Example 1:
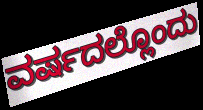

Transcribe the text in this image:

ವರ್ಷದಲ್ಲೊಂದು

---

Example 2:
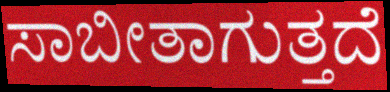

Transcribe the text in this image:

ಸಾಬೀತಾಗುತ್ತದೆ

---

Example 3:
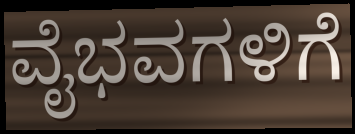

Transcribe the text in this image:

ವೈಭವಗಳಿಗೆ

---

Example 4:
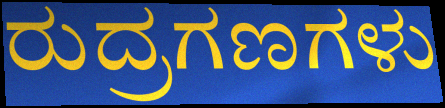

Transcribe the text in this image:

ರುದ್ರಗಣಗಳು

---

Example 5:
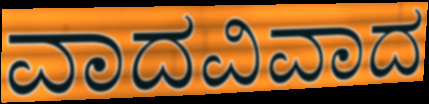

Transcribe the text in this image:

ವಾದವಿವಾದ